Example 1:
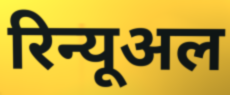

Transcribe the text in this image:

रिन्यूअल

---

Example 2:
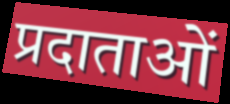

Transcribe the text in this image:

प्रदाताओं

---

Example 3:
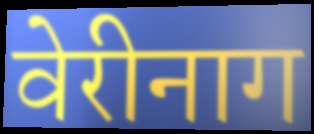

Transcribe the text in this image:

वेरीनाग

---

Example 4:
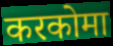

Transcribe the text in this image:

करकोमा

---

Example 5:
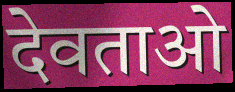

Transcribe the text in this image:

देवताओ